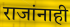
राजांनाही